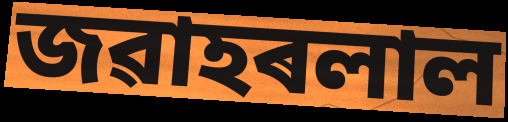
জৱাহৰলাল